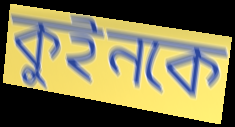
কুইনকে